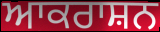
ਆਕਰਾਸ਼ਨ